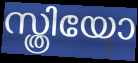
സ്ത്രിയോ